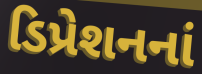
ડિપ્રેશનનાં